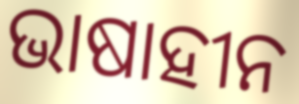
ଭାଷାହୀନ